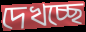
দেখচ্ছে